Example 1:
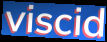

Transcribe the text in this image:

viscid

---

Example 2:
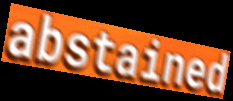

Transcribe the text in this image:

abstained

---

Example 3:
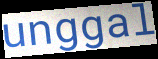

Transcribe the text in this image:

unggal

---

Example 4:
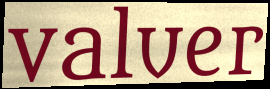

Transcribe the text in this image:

valuer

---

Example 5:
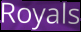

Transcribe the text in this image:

Royals